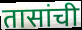
तासांची